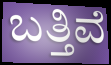
ಬತ್ತಿವೆ